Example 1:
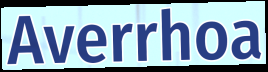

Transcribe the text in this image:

Averrhoa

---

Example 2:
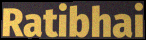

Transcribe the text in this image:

Ratibhai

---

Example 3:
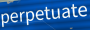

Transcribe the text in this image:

perpetuate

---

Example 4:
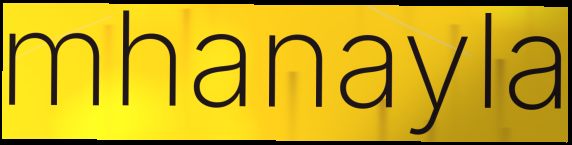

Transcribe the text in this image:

mhanayla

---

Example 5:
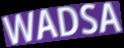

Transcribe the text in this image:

WADSA